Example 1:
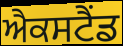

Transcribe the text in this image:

ਐਕਸਟੈਂਡ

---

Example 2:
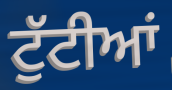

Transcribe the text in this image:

ਟੁੱਟੀਆਂ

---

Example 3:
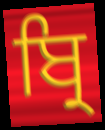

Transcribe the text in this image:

ਬ੍ਰਿ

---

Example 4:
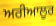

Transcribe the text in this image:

ਅਰੀਆਲੂਰ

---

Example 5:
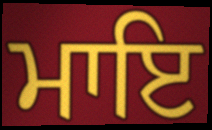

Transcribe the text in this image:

ਮਾਇ